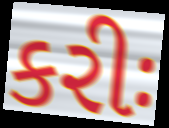
કરીઃ